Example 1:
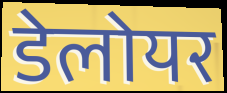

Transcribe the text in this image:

डेलोयर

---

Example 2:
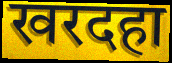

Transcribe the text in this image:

खरदहा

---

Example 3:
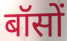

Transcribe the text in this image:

बॉसों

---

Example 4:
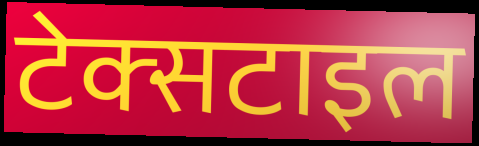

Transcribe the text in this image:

टेक्‍सटाइल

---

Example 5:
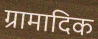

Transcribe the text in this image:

ग्रामादिक